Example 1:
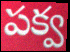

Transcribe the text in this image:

పక్వ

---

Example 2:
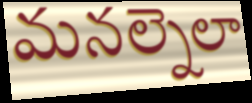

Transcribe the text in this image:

మనల్నెలా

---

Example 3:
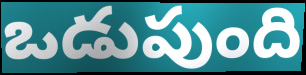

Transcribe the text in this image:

ఒడుపుంది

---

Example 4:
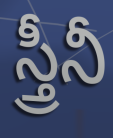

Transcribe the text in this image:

స్త్రీనీ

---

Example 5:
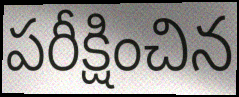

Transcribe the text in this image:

పరీక్షించిన